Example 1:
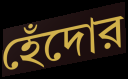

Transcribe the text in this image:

হেঁদোর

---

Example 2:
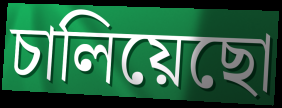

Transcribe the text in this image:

চালিয়েছো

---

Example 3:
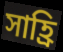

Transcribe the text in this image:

সাহ্রি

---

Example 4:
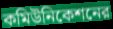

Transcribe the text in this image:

কমিউনিকেশনের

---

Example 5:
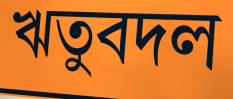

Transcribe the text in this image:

ঋতুবদল